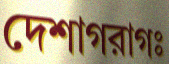
দেশাগরাগঃ